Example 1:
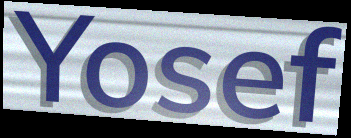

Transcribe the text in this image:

Yosef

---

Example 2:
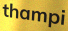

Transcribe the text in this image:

thampi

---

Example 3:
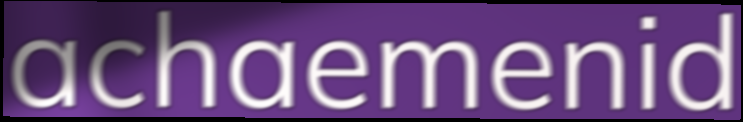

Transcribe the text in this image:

achaemenid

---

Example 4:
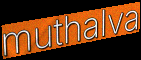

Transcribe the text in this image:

muthalva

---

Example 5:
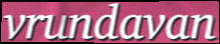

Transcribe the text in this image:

vrundavan